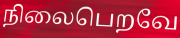
நிலைபெறவே